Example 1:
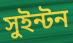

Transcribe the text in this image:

সুইন্টন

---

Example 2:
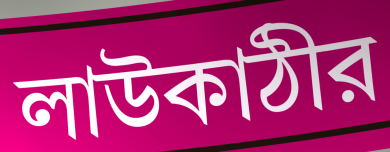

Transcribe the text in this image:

লাউকাঠীর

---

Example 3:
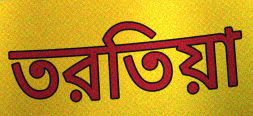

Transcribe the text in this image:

তরতিয়া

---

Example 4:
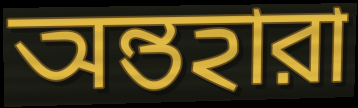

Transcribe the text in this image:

অন্তহারা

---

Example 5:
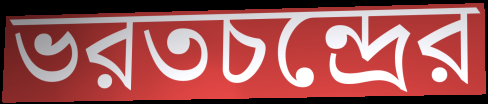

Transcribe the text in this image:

ভরতচন্দ্রের